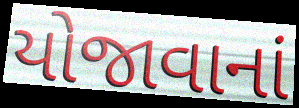
યોજાવાનાં